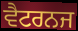
ਵੈਟਰਨਜ